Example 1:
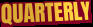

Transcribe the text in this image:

QUARTERLY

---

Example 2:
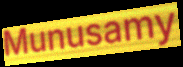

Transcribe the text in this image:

Munusamy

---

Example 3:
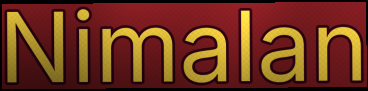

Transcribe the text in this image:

Nimalan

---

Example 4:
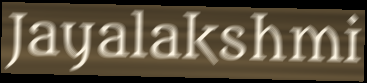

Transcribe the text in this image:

Jayalakshmi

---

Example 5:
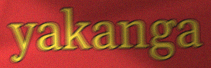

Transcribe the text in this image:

yakanga